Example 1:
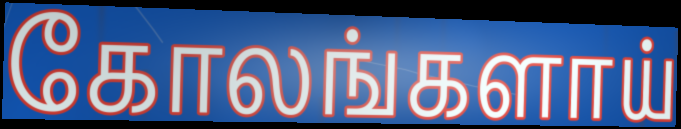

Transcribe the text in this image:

கோலங்களாய்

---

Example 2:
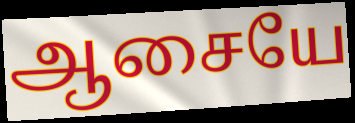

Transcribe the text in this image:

ஆசையே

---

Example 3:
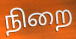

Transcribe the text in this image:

நிறை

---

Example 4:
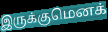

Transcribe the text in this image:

இருக்குமெனக்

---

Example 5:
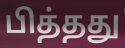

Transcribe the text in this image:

பித்தது